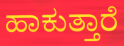
ಹಾಕುತ್ತಾರೆ